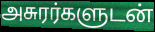
அசுரர்களுடன்